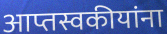
आप्तस्वकीयांना